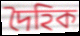
দৈহিক